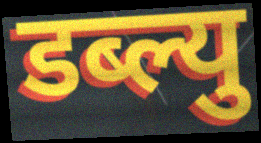
डब्ल्यु